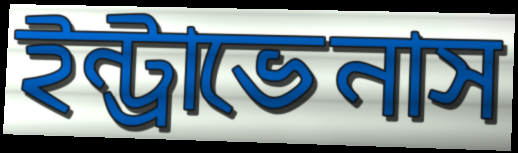
ইন্ট্রাভেনাস